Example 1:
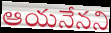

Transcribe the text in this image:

ఆయనేనని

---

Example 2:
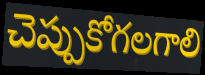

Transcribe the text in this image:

చెప్పుకోగలగాలి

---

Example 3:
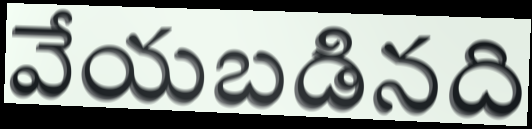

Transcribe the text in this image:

వేయబడినది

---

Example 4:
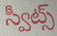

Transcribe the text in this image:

స్వీట్స్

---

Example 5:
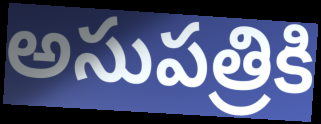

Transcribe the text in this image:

అసుపత్రికి